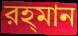
রহ্‌মান